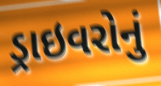
ડ્રાઇવરોનું